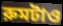
রুমটাও